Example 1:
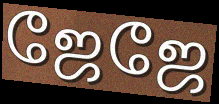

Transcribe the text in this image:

ஜேஜே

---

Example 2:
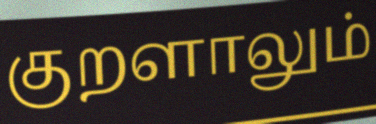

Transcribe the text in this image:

குறளாலும்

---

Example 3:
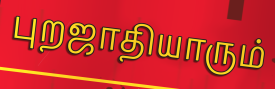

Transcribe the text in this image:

புறஜாதியாரும்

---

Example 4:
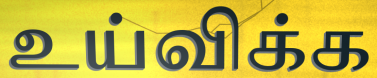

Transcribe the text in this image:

உய்விக்க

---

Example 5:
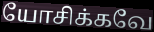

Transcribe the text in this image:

யோசிக்கவே